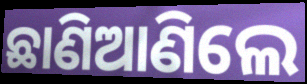
ଛାଣିଆଣିଲେ